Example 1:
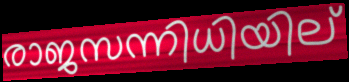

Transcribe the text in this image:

രാജസന്നിധിയില്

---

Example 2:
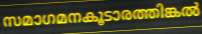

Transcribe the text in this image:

സമാഗമനകൂടാരത്തിങ്കൽ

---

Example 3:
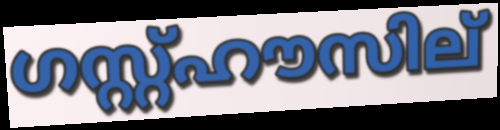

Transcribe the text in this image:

ഗസ്റ്റ്ഹൗസില്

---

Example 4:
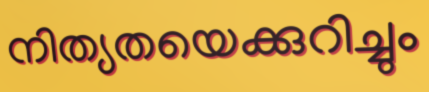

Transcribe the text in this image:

നിത്യതയെക്കുറിച്ചും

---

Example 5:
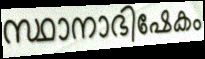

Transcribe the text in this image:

സ്ഥാനാഭിഷേകം